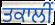
ਤਕਾਲੀਂ